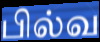
பில்வ